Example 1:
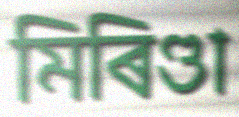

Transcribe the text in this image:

মিৰিণ্ডা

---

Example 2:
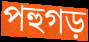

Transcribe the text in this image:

পহুগড়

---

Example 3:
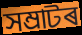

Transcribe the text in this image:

সম্ৰাটৰ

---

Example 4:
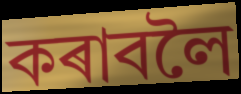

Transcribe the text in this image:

কৰাবলৈ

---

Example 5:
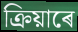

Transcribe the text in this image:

ক্ৰিয়াৰে